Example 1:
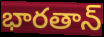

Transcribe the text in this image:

భారతాన్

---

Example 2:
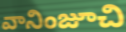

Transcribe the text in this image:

వానింజూచి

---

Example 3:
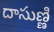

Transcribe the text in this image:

దాసుణ్ణి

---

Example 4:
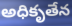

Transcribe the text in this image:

అధికృతేన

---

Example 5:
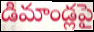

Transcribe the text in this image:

డిమాండ్లపై